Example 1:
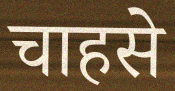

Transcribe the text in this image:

चाहसे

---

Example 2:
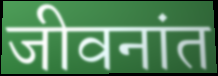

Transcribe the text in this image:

जीवनांत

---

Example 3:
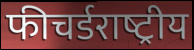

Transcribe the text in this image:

फीचर्डराष्ट्रीय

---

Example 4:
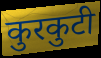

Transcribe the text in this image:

कुरकुटी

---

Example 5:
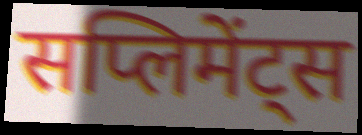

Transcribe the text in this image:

सप्लिमेंट्स